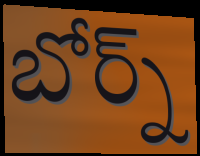
బోర్న్